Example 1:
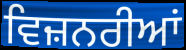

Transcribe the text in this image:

ਵਿਜ਼ਨਰੀਆਂ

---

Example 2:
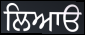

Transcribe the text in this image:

ਲਿਆੳ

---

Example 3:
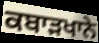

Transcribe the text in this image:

ਕਬਾੜਖਾਨੇ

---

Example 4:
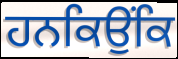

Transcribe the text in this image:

ਹਨਕਿਉਂਕਿ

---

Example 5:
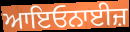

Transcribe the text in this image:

ਆਇਓਨਾਈਜ਼